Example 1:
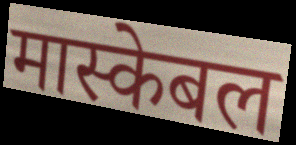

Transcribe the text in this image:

मास्केबल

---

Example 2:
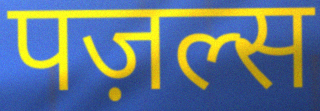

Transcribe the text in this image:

पज़ल्स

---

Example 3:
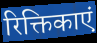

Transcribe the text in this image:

रिक्तिकाएं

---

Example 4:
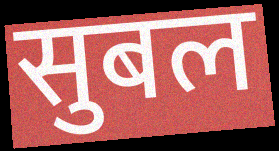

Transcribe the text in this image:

सुबल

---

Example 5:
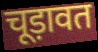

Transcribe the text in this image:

चूड़ावत